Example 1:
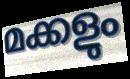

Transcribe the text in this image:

മക്കളും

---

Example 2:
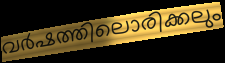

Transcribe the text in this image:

വർഷത്തിലൊരിക്കലും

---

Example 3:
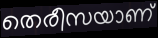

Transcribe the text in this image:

തെരീസയാണ്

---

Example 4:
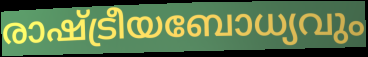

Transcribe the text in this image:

രാഷ്ട്രീയബോധ്യവും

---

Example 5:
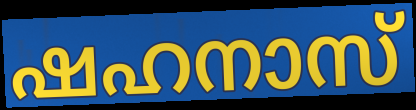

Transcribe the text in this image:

ഷഹനാസ്